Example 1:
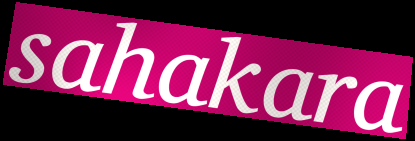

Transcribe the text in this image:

sahakara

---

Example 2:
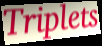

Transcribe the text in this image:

Triplets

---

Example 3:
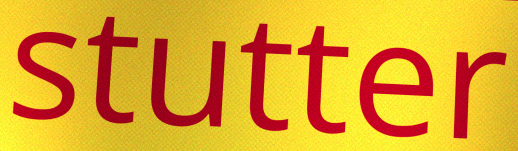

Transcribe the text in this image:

stutter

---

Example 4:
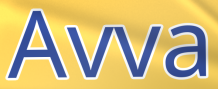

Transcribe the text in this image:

Avva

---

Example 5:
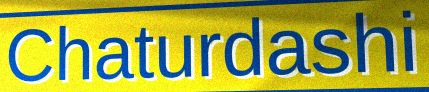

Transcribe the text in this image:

Chaturdashi